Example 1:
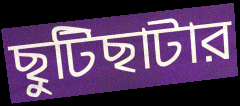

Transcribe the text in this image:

ছুটিছাটার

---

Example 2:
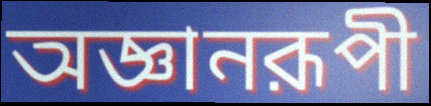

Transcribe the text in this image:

অজ্ঞানরূপী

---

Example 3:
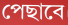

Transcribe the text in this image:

পেছাবে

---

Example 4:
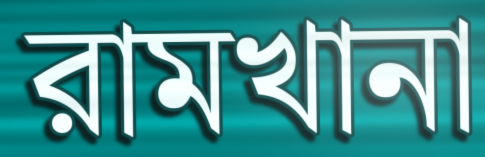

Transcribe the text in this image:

রামখানা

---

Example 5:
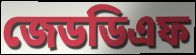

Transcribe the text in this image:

জেডডিএফ